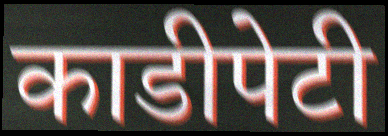
काडीपेटी